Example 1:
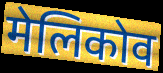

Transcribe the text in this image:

मेलिकोव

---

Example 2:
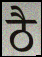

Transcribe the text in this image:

ठै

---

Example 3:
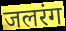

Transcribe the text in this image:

जलरंग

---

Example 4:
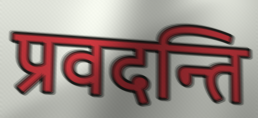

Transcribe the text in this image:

प्रवदन्ति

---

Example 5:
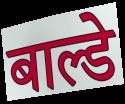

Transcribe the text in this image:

बाल्डे